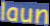
laun